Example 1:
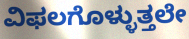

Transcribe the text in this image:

ವಿಫಲಗೊಳ್ಳುತ್ತಲೇ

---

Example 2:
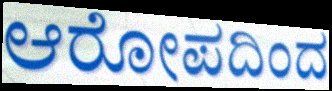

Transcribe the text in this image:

ಆರೋಪದಿಂದ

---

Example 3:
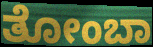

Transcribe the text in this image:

ತೋಂಬಾ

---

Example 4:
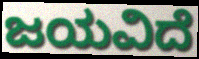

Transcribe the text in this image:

ಜಯವಿದೆ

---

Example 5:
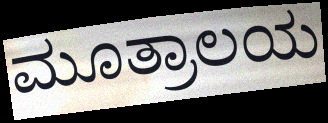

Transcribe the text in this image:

ಮೂತ್ರಾಲಯ